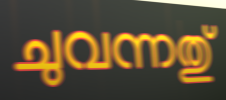
ചുവന്നതു്